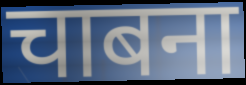
चाबना